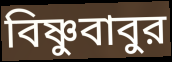
বিষ্ণুবাবুর